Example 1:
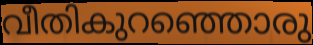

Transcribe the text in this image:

വീതികുറഞ്ഞൊരു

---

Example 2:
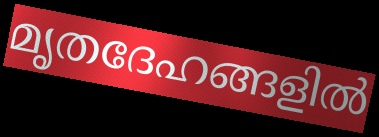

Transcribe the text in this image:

മൃതദേഹങ്ങളിൽ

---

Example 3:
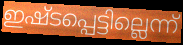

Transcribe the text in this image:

ഇഷ്ടപ്പെട്ടില്ലെന്ന്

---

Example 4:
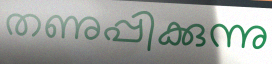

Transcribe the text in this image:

തണുപ്പിക്കുന്നു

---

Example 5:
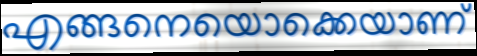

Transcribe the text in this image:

എങ്ങനെയൊക്കെയാണ്